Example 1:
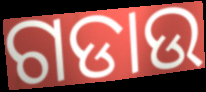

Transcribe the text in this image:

ଗଡାଉ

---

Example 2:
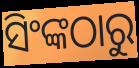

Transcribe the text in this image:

ସିଂଙ୍କଠାରୁ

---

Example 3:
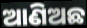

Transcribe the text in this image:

ଆଣିଅଛ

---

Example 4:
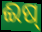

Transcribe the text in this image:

ଈଷ୍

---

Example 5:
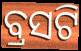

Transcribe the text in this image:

ବ୍ରସଟି